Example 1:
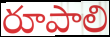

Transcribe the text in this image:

రూపాలి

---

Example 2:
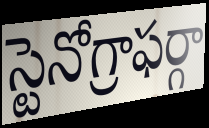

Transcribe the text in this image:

స్టెనోగ్రాఫర్గా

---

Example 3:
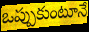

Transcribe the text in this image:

ఒప్పుకుంటూనే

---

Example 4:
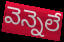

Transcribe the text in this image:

వెన్నెలే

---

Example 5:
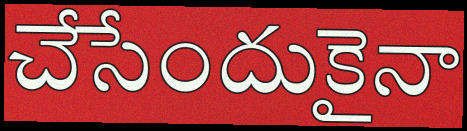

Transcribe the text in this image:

చేసేందుకైనా